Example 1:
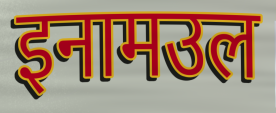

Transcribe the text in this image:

इनामउल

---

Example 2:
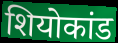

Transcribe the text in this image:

शियोकांड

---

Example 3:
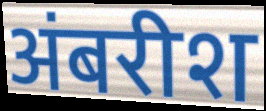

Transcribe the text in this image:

अंबरीश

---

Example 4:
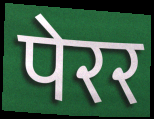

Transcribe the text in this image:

पेरर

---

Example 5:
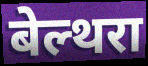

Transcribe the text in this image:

बेल्थरा